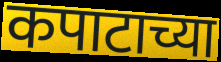
कपाटाच्या